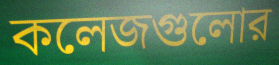
কলেজগুলোর